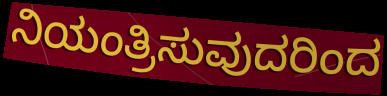
ನಿಯಂತ್ರಿಸುವುದರಿಂದ